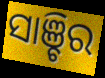
ସାଞ୍ଚିର